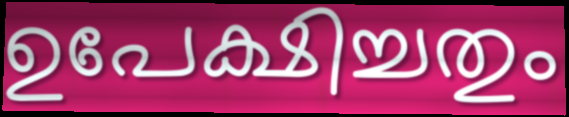
ഉപേക്ഷിച്ചതും